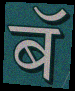
बॅ